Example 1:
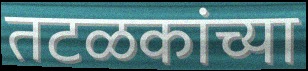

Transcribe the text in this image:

तटळकांच्या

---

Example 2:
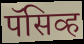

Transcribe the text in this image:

पॅसिव्ह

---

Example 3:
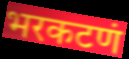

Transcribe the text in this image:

भरकटणं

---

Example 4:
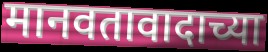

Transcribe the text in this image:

मानवतावादाच्या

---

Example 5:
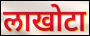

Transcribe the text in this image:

लाखोटा